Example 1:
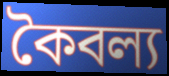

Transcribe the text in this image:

কৈবল্য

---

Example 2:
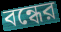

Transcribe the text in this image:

বন্ধের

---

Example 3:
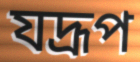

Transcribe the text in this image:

যদ্রূপ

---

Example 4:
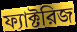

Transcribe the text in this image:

ফ্যাক্টরিজ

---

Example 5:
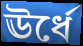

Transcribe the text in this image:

ঊর্ধে